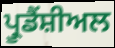
ਪ੍ਰੂਡੈਂਸ਼ੀਅਲ